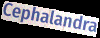
Cephalandra